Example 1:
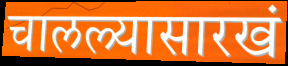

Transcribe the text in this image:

चालल्यासारखं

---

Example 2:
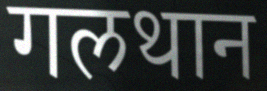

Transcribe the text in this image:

गलथान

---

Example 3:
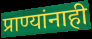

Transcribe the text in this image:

प्राण्यांनाही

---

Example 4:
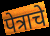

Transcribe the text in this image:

पेत्राचे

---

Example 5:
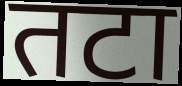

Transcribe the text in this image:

तटा